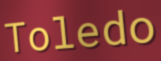
Toledo